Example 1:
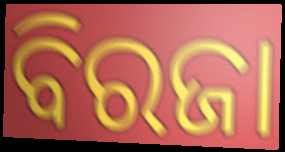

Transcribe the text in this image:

ବିରଜା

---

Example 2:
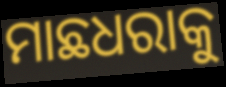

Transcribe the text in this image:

ମାଛଧରାକୁ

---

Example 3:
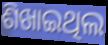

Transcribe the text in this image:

ଶିଖାଇଥିଲ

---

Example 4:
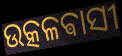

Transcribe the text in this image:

ଉତ୍କଳଵାସୀ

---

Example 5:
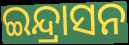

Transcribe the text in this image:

ଇନ୍ଦ୍ରାସନ